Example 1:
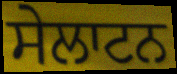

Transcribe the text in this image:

ਸੇਲਾਟਨ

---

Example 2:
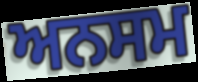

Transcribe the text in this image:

ਅਨਸਮ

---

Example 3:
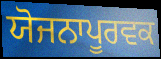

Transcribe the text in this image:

ਯੋਜਨਾਪੂਰਵਕ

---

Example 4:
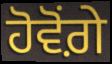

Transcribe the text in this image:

ਹੋਵੋਂਗ਼ੇ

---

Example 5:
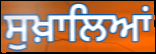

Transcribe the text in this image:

ਸੁਖ਼ਾਲਿਆਂ